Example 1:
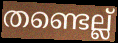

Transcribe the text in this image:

തണ്ടെല്ല്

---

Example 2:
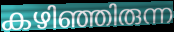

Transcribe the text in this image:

കഴിഞ്ഞിരുന്ന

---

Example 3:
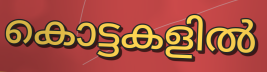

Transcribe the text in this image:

കൊട്ടകളിൽ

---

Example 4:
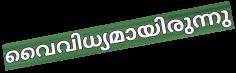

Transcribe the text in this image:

വൈവിധ്യമായിരുന്നു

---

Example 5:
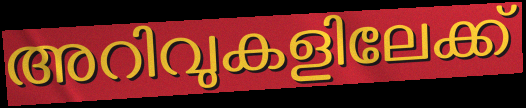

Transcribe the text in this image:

അറിവുകളിലേക്ക്